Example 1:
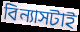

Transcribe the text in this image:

বিন্যাসটাই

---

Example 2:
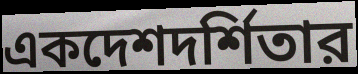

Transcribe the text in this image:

একদেশদর্শিতার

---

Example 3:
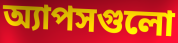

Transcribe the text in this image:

অ্যাপসগুলো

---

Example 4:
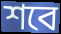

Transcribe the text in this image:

শবে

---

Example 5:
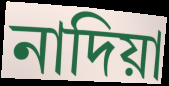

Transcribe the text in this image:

নাদিয়া